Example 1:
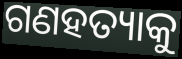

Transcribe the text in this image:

ଗଣହତ୍ୟାକୁ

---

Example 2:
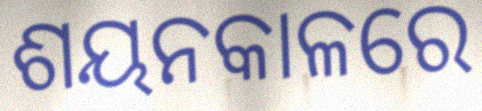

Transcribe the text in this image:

ଶୟନକାଳରେ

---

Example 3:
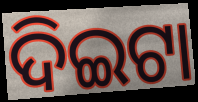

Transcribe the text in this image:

ଦିଇଟା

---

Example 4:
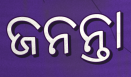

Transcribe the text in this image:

ଜନନ୍ତା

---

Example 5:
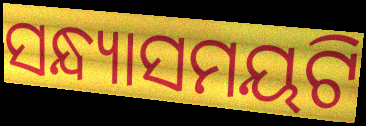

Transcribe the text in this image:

ସନ୍ଧ୍ୟାସମୟଟି